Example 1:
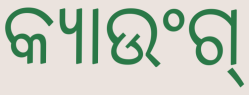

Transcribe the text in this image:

କ୍ୟାଉଂଗ୍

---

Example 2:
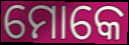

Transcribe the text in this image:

ମୋକେ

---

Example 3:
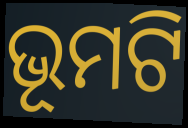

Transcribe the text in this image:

ଭୂମଟି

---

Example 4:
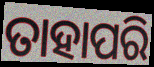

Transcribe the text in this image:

ତାହାପରି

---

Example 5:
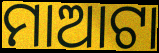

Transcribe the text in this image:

ମାଆଟା